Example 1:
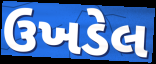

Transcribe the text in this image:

ઉખડેલ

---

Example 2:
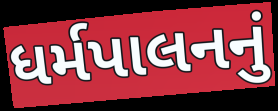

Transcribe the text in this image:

ધર્મપાલનનું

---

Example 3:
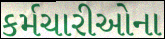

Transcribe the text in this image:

કર્મચારીઓના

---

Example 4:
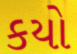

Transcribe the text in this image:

કયો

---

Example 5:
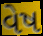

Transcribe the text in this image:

વેષ